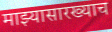
माझ्यासारख्याच